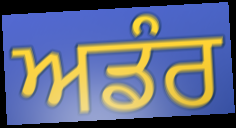
ਅਡੰਰ